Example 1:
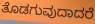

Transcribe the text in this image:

ತೊಡಗುವುದಾದರೆ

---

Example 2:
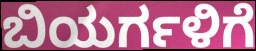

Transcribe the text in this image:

ಬಿಯರ್ಗಳಿಗೆ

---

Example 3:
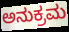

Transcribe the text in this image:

ಅನುಕ್ರಮ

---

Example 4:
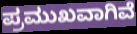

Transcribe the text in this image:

ಪ್ರಮುಖವಾಗಿವೆ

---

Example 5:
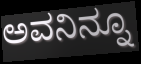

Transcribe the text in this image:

ಅವನಿನ್ನೂ